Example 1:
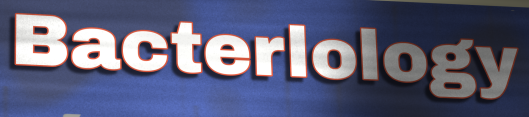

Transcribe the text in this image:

Bacterlology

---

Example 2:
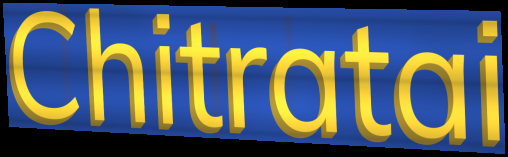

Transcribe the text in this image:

Chitratai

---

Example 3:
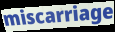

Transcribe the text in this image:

miscarriage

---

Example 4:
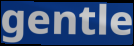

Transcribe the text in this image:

gentle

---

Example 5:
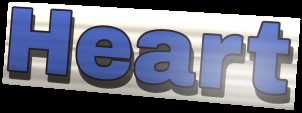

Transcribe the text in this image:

Heart